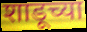
शाडूच्या